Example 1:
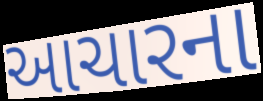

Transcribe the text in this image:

આચારના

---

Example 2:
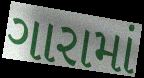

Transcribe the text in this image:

ગારામાં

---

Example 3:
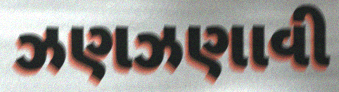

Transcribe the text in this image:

ઝણઝણાવી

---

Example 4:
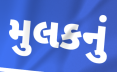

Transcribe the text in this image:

મુલકનું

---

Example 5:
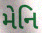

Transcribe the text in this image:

મેનિ